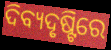
ଦିବ୍ୟଦୃଷ୍ଟିରେ